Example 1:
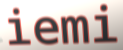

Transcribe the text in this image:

iemi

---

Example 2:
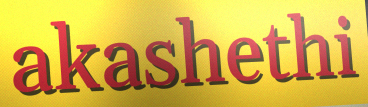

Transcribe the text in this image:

akashethi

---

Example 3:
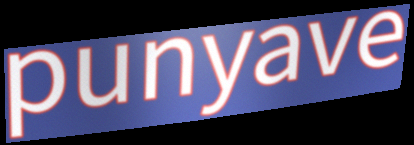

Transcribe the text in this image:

punyave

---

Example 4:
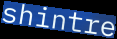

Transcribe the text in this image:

shintre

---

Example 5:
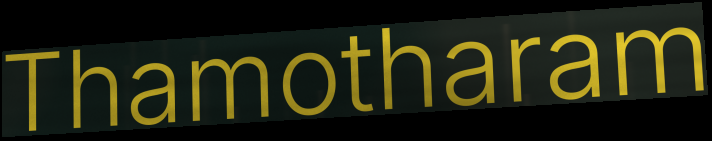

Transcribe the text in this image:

Thamotharam